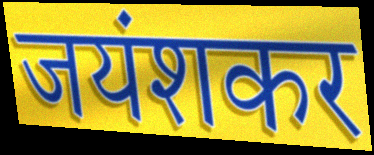
जयंशकर